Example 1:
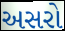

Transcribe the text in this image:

અસરો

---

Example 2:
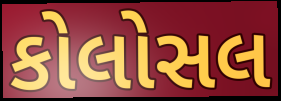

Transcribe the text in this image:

કોલોસલ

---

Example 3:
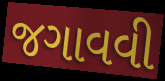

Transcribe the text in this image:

જગાવવી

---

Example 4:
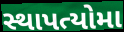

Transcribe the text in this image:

સ્થાપત્યોમા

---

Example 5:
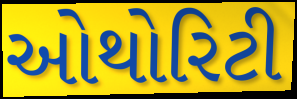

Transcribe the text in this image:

ઓથોરિટી